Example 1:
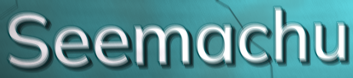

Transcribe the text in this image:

Seemachu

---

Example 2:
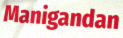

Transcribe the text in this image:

Manigandan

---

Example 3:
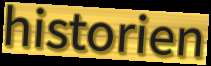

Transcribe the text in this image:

historien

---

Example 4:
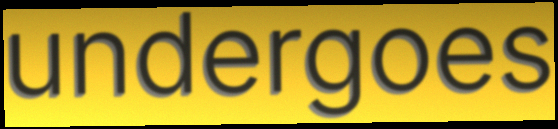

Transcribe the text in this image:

undergoes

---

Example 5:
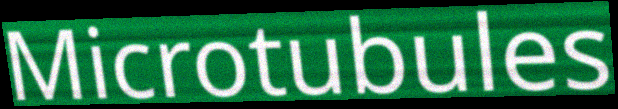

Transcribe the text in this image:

Microtubules